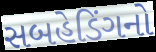
સબહેડિંગનો